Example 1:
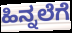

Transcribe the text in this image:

ಹಿನ್ನಲೆಗೆ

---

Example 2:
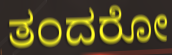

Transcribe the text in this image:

ತಂದರೋ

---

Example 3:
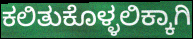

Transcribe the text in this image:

ಕಲಿತುಕೊಳ್ಳಲಿಕ್ಕಾಗಿ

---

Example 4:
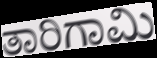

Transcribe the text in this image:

ತಾರಿಗಾಮಿ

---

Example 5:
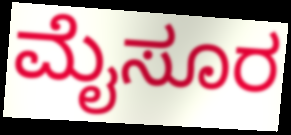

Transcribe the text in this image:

ಮೈಸೂರ